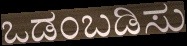
ಒಡಂಬಡಿಸು